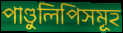
পাণ্ডুলিপিসমূহ